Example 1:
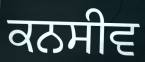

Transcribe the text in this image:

ਕਨਸੀਵ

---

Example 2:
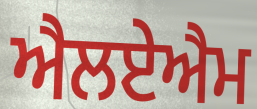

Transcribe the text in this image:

ਐਲਏਐਮ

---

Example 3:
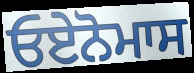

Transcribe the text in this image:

ਓਏਨੋਮਾਸ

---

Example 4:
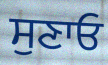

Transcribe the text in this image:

ਸੁਣਾਓ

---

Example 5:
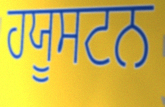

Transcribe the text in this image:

ਹਯੂਸਟਨ